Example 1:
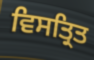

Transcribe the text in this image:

ਵਿਸਤ੍ਰਿਤ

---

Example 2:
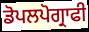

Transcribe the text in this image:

ਡੋਪਲਪੋਗ੍ਰਾਫੀ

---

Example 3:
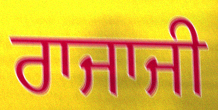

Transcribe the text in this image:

ਰਾਜਾਜੀ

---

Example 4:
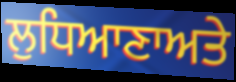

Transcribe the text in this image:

ਲੁਧਿਆਣਾਅਤੇ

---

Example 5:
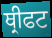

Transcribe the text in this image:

ਥ੍ਰੀਫਟ